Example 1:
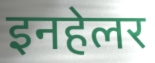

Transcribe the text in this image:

इनहेलर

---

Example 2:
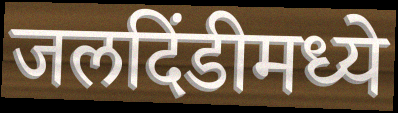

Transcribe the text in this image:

जलदिंडीमध्ये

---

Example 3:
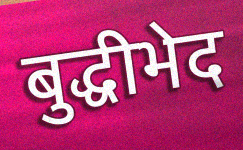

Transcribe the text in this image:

बुद्धीभेद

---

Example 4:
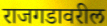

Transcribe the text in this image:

राजगडावरील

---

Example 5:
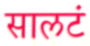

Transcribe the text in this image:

सालटं